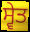
ਸ੍ਵੇਤ